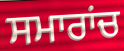
ਸਮਾਰਾਂਚ